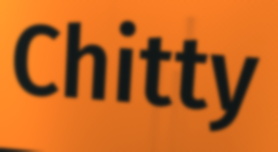
Chitty